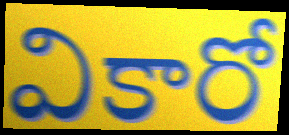
వికారో